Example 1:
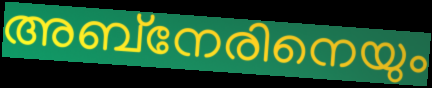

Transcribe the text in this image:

അബ്നേരിനെയും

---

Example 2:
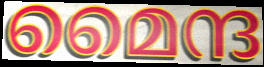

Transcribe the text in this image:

മൈന്ദ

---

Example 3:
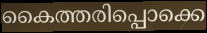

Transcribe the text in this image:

കൈത്തരിപ്പൊക്കെ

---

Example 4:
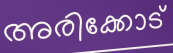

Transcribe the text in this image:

അരിക്കോട്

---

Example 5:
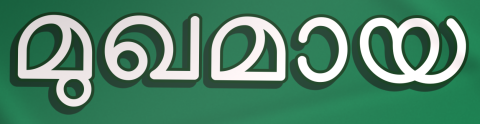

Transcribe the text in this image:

മുഖമായ